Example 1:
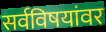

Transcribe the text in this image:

सर्वविषयांवर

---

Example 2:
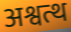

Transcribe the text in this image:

अश्वत्थ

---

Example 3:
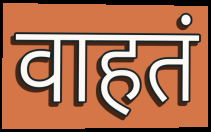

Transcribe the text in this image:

वाहतं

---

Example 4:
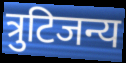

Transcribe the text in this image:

त्रुटिजन्य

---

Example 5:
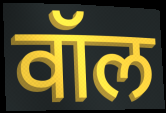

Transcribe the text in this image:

वॉल